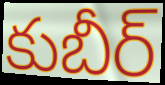
కుబీర్